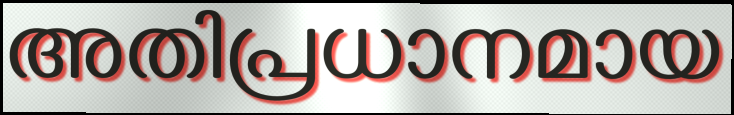
അതിപ്രധാനമായ